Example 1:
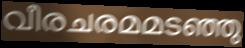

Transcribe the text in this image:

വീരചരമമടഞ്ഞു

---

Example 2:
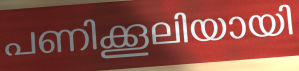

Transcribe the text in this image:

പണിക്കൂലിയായി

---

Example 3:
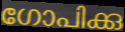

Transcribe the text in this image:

ഗോപിക്കു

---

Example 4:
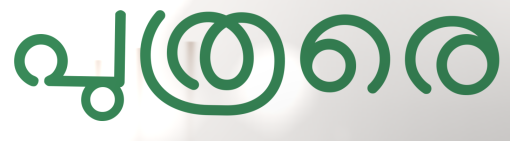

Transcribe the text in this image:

പുത്രരെ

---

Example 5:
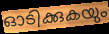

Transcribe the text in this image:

ഓടിക്കുകയും